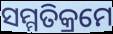
ସମ୍ମତିକ୍ରମେ